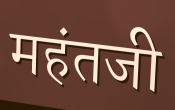
महंतजी